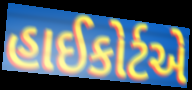
હાઈકોર્ટએ